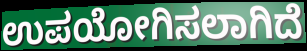
ಉಪಯೋಗಿಸಲಾಗಿದೆ